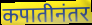
कपातीनंतर